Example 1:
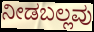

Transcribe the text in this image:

ನೀಡಬಲ್ಲವು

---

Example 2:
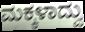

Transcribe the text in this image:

ಮಕ್ಕಳಾದ್ವು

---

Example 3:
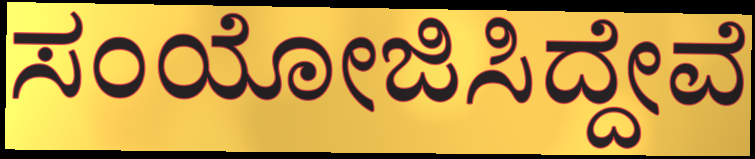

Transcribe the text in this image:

ಸಂಯೋಜಿಸಿದ್ದೇವೆ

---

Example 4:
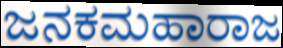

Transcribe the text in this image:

ಜನಕಮಹಾರಾಜ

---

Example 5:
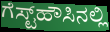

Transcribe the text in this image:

ಗೆಸ್ಟ್‌ಹೌಸಿನಲ್ಲಿ